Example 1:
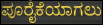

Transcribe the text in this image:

ಪೂರೈಕೆಯಾಗಲು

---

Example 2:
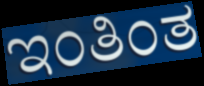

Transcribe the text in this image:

ಇಂತಿಂತ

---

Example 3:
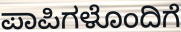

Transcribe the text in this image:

ಪಾಪಿಗಳೊಂದಿಗೆ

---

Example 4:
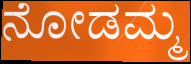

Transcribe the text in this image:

ನೋಡಮ್ಮ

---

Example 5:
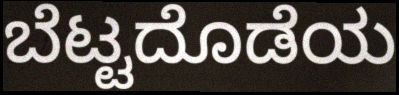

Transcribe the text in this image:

ಬೆಟ್ಟದೊಡೆಯ